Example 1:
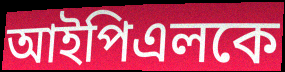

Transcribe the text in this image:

আইপিএলকে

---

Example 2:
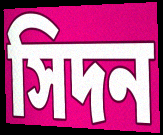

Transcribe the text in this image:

সিদন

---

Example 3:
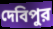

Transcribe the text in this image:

দেবিপুর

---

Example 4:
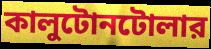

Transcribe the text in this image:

কালুটোনটোলার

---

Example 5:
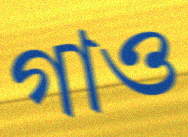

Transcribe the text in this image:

গাও